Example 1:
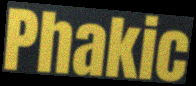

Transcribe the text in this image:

Phakic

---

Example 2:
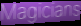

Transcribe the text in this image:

Magicians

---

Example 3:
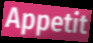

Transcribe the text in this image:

Appetit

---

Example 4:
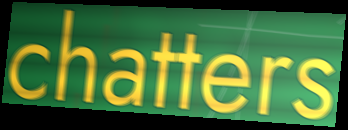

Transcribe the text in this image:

chatters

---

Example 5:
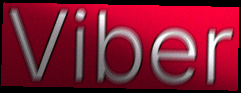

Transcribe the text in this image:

Viber